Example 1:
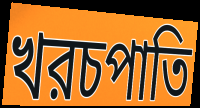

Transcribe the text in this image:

খরচপাতি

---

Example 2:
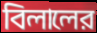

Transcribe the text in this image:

বিলালের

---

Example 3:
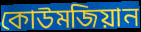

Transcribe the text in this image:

কোউমজিয়ান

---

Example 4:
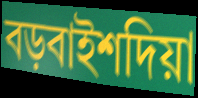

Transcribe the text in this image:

বড়বাইশদিয়া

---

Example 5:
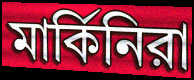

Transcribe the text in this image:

মার্কিনিরা